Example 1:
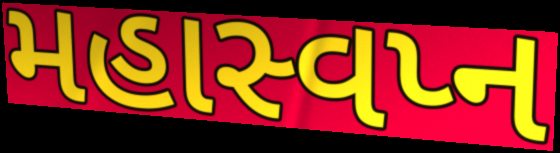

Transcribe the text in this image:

મહાસ્વપ્ન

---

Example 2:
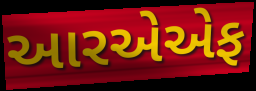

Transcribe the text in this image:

આરએએફ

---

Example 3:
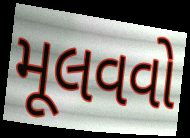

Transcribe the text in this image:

મૂલવવો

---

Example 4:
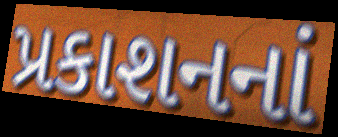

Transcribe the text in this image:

પ્રકાશનનાં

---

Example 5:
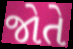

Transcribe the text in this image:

જોતે